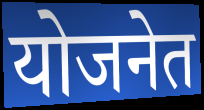
योजनेत